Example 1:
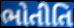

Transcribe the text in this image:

ભોતીતિ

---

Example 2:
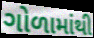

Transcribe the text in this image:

ગોળામાંથી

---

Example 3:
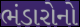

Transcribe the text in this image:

ભંડારોનો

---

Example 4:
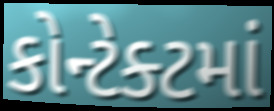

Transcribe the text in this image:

કોન્ટેક્ટમાં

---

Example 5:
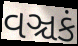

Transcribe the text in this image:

વઞ્ચકં